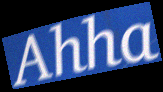
Ahha